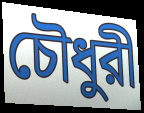
চৌধুরী